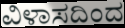
ವಿಳಾಸದಿಂದ